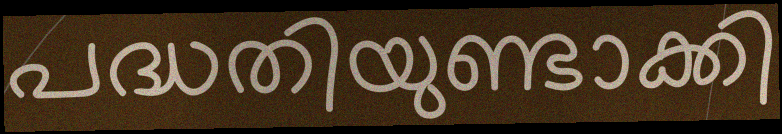
പദ്ധതിയുണ്ടാക്കി